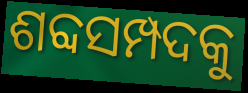
ଶବ୍ଦସମ୍ପଦକୁ